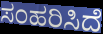
ಸಂಹರಿಸಿದೆ